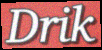
Drik